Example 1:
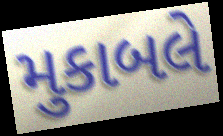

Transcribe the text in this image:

મુકાબલે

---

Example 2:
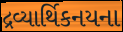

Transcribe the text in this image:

દ્રવ્યાર્થિકનયના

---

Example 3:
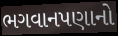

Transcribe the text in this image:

ભગવાનપણાનો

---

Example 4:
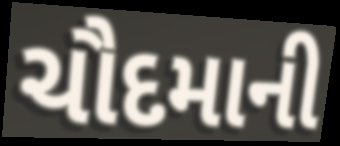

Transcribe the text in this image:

ચૌદમાની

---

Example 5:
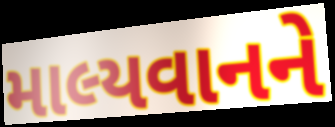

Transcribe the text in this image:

માલ્યવાનને